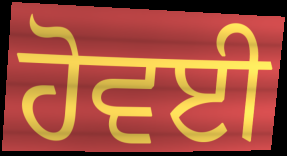
ਹੋਵਈ